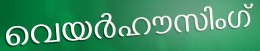
വെയർഹൗസിംഗ്